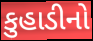
કુહાડીનો